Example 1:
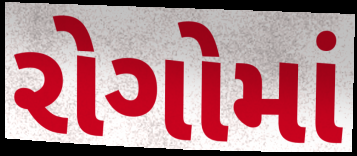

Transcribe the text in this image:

રોગોમાં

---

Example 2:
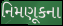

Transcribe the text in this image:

નિમણૂકના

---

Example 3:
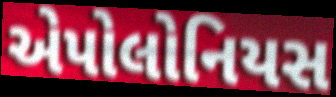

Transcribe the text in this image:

એપોલોનિયસ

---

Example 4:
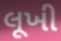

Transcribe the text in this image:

લૂખી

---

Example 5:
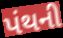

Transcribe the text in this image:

પંથની